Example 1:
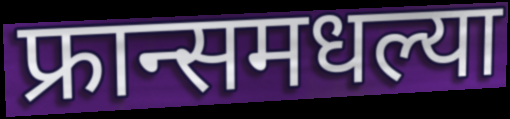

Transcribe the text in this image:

फ्रान्समधल्या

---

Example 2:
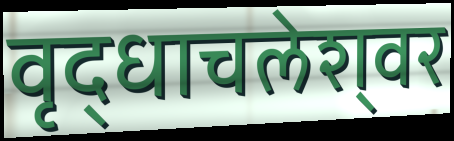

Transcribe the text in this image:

वृद्धाचलेश्वर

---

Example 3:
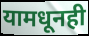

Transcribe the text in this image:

यामधूनही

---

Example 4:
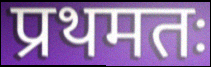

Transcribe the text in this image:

प्रथमतः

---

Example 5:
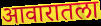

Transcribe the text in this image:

आवारातला